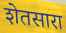
शेतसारा